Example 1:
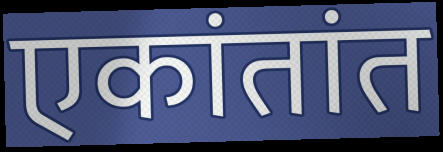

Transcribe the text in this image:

एकांतांत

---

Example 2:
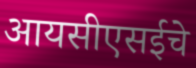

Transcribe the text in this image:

आयसीएसईचे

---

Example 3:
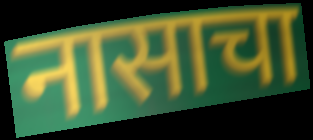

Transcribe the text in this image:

नासाचा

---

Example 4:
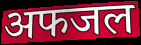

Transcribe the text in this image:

अफजल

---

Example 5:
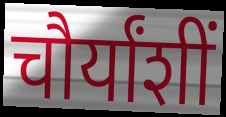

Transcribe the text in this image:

चौर्यांशीं